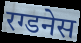
रग्डनेस